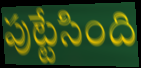
పుట్టేసింది